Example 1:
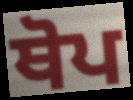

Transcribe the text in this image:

ਥੋਪ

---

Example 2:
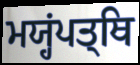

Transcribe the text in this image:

ਮਯ੍ਹਂਪਤ੍ਥਿ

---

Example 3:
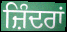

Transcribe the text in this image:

ਜ਼ਿੰਦਰਾਂ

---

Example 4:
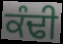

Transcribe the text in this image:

ਕੰਢੀ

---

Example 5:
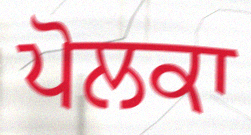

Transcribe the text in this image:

ਪੋਲਕਾ